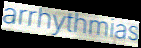
arrhythmias